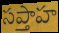
సప్తాహ